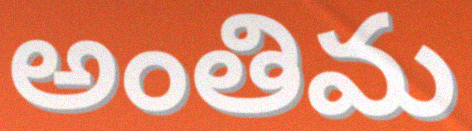
అంతిమ